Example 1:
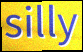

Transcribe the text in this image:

silly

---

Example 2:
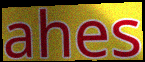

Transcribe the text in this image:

ahes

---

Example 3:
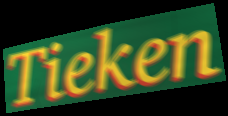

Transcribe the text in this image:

Tieken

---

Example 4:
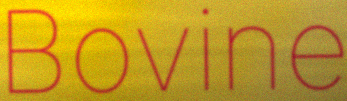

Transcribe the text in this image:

Bovine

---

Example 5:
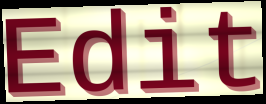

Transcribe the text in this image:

Edit